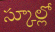
స్కూల్లో